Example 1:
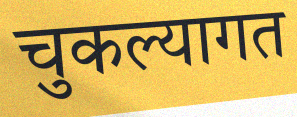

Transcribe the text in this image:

चुकल्यागत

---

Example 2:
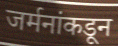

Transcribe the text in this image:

जर्मनांकडून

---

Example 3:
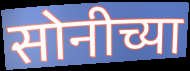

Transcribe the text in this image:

सोनीच्या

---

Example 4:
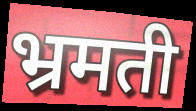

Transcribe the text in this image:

भ्रमती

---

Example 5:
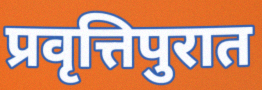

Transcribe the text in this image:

प्रवृत्तिपुरात